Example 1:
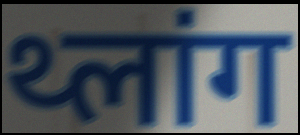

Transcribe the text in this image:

थ्लांग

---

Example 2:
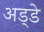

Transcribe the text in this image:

अड्‍डे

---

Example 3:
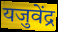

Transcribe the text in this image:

यजुवेंद्र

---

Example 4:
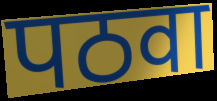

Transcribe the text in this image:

पठवा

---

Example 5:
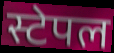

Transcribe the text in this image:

स्टेपल